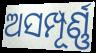
ଅସମ୍ପୂର୍ଣ୍ଣ